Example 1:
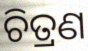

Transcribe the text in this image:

ଚିତ୍ରଣ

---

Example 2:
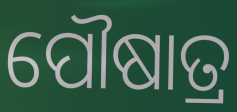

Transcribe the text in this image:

ପୌଷାତ୍ର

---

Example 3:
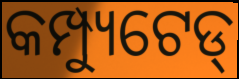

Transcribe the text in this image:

କମ୍ପ୍ୟୁଟେଡ୍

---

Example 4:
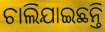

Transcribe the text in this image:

ଚାଲିଯାଇଛନ୍ତି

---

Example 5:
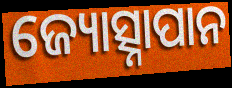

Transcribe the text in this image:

ଜ୍ୟୋତ୍ସ୍ନାପାନ